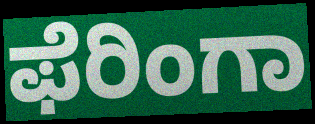
ಫೆರಿಂಗಾ